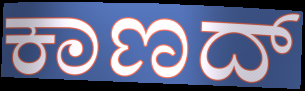
ಕಾಣದ್